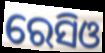
ରେସିଓ